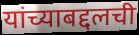
यांच्याबद्दलची